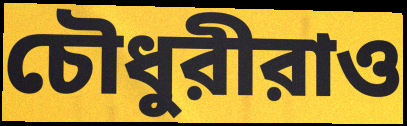
চৌধুরীরাও